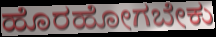
ಹೊರಹೋಗಬೇಕು